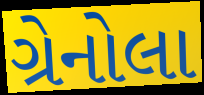
ગ્રેનોલા